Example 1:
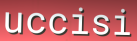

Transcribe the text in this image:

uccisi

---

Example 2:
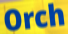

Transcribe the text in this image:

Orch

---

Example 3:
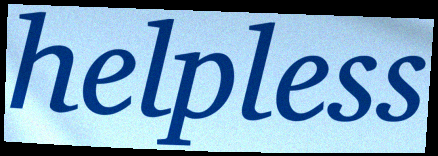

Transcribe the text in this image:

helpless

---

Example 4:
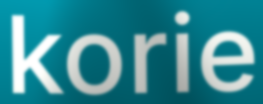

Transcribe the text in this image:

korie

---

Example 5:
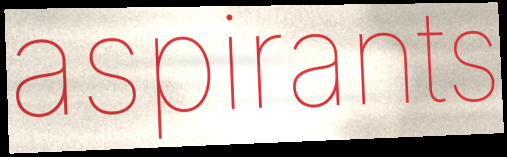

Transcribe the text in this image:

aspirants